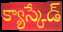
క్యాస్కేడ్